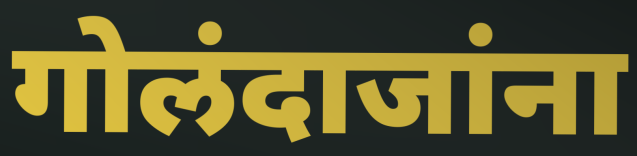
गोलंदाजांना